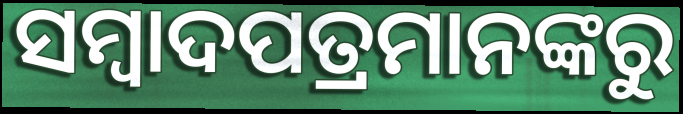
ସମ୍ୱାଦପତ୍ରମାନଙ୍କରୁ